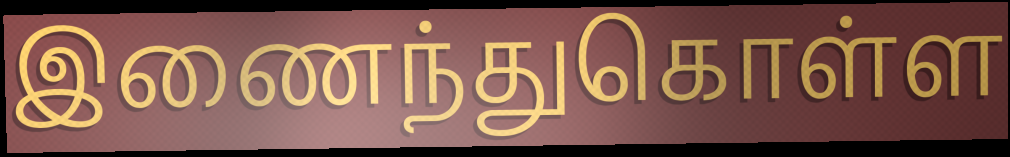
இணைந்துகொள்ள